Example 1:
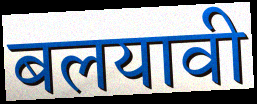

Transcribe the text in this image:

बलयावी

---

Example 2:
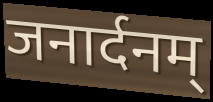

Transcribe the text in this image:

जनार्दनम्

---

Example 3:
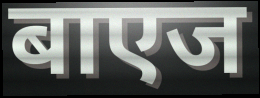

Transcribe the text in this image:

बाएज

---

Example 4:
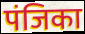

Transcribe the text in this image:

पंजिका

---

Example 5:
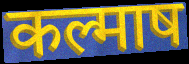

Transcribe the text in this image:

कल्माष